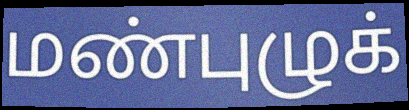
மண்புழுக்